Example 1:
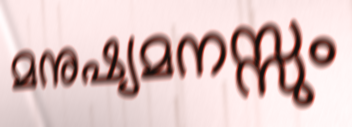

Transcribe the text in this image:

മനുഷ്യമനസ്സും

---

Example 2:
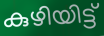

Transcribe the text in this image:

കുഴിയിട്ട്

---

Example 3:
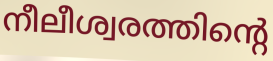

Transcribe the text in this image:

നീലീശ്വരത്തിന്റെ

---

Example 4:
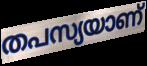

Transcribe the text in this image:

തപസ്യയാണ്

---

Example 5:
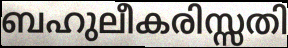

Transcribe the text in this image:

ബഹുലീകരിസ്സതി